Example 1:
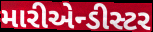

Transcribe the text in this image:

મારીએન્ડીસ્ટર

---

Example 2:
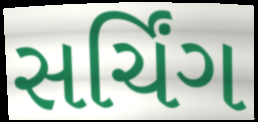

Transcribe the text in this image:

સર્ચિંગ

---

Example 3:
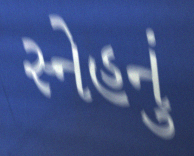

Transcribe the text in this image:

સ્નેહનું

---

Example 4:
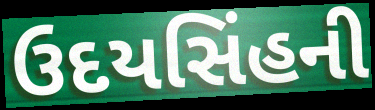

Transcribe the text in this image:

ઉદયસિંહની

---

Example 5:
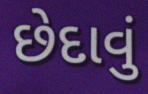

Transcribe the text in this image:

છેદાવું